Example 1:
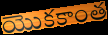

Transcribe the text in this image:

యొకకాంత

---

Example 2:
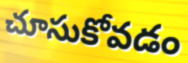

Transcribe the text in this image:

చూసుకోవడం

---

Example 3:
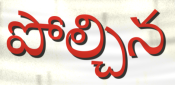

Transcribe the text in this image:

పోల్చిన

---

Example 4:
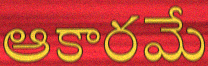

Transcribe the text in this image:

ఆకారమే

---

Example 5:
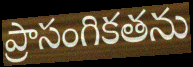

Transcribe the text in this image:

ప్రాసంగికతను